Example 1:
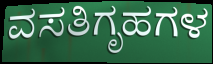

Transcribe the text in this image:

ವಸತಿಗೃಹಗಳ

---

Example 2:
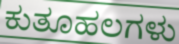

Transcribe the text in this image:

ಕುತೂಹಲಗಳು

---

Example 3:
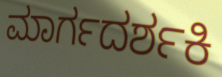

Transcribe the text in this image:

ಮಾರ್ಗದರ್ಶಕಿ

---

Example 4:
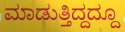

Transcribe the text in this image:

ಮಾಡುತ್ತಿದ್ದದ್ದೂ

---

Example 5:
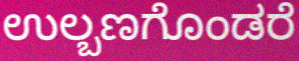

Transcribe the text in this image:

ಉಲ್ಬಣಗೊಂಡರೆ